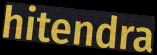
hitendra